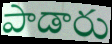
పాడారు